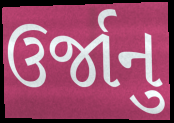
ઉર્જાનુ